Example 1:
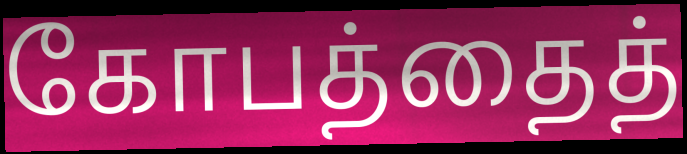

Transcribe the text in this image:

கோபத்தைத்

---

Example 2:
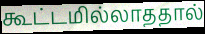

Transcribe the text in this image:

கூட்டமில்லாததால்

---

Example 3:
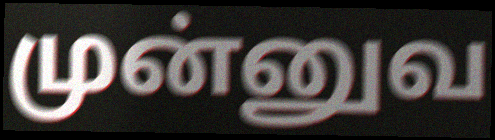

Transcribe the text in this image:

முன்னுவ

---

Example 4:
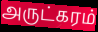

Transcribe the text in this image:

அருட்கரம்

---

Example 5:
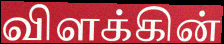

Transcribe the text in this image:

விளக்கின்